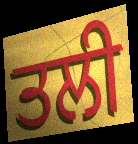
ਤਲੀ